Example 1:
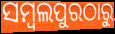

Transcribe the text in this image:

ସମ୍ବଲପୁରଠାରୁ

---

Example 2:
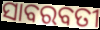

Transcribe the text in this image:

ସାବରବତୀ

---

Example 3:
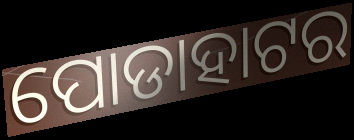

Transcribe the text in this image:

ପୋଡାହାଟର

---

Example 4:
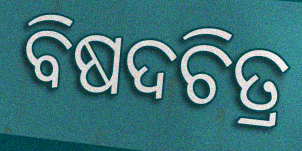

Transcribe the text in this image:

ବିଷଦଚିତ୍ର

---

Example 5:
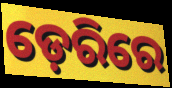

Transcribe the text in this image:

ଡ଼େରିରେ